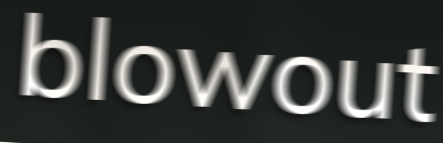
blowout